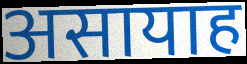
असायाह